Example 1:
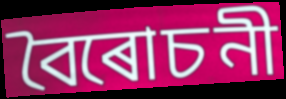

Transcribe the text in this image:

বৈৰোচনী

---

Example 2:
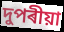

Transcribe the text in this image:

দুপৰীয়া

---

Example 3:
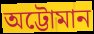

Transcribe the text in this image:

অট্টোমান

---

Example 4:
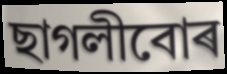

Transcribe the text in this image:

ছাগলীবোৰ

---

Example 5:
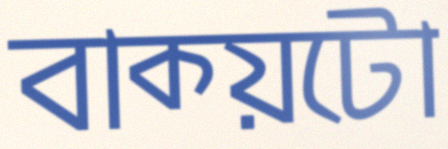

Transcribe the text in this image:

বাক্য়টো